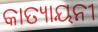
କାତ୍ୟାୟନୀ